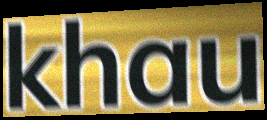
khau